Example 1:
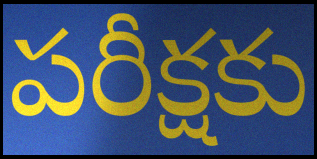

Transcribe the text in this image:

పరీక్షకు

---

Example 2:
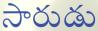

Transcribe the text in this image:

సారుడు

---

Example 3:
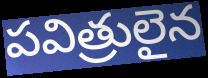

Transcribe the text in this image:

పవిత్రులైన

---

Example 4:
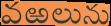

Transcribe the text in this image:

వఱలును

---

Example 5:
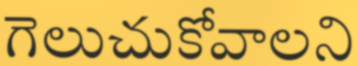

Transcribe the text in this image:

గెలుచుకోవాలని